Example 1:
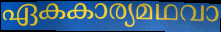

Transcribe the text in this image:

ഏകകാര്യമഥവാ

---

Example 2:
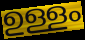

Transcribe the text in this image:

ഉള്ളം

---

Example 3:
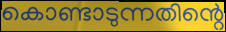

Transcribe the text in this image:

കൊണ്ടാടുന്നതിന്റെ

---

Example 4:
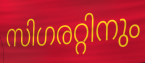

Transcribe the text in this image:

സിഗരറ്റിനും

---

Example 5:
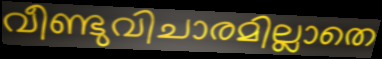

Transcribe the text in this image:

വീണ്ടുവിചാരമില്ലാതെ